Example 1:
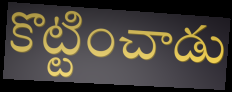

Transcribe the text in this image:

కొట్టించాడు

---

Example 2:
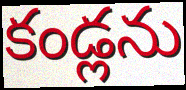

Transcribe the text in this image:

కండ్లను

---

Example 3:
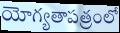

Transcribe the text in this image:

యోగ్యతాపత్రంలో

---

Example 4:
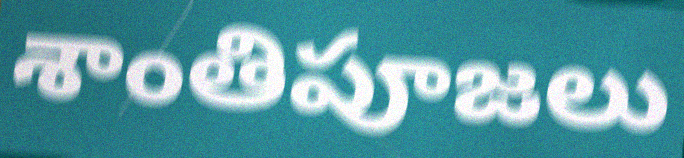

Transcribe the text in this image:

శాంతిపూజలు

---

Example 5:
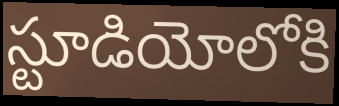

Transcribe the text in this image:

స్టూడియోలోకి